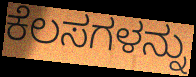
ಕೆಲಸಗಳನ್ನು